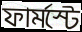
ফার্মস্টে